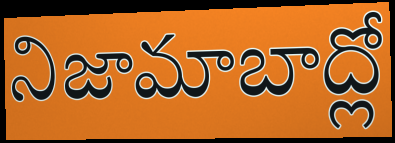
నిజామాబాద్లో